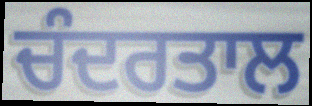
ਚੰਦਰਤਾਲ